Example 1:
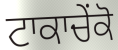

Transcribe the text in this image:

ਟਾਕਾਚੇਂਕੋ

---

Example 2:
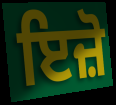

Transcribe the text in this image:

ਇਜ਼ੋ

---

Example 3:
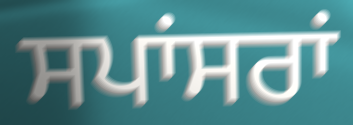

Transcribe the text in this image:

ਸਪਾਂਸਰਾਂ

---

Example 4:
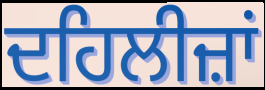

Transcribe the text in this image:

ਦਹਿਲੀਜ਼ਾਂ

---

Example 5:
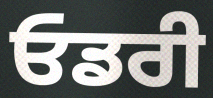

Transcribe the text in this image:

ਓਡਰੀ